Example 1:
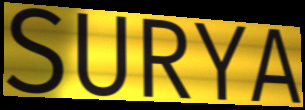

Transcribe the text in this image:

SURYA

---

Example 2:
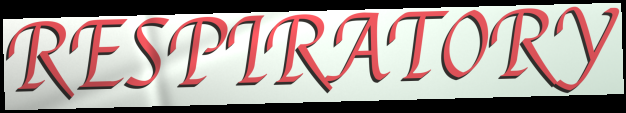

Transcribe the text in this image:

RESPIRATORY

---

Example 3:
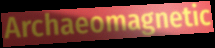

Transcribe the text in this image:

Archaeomagnetic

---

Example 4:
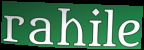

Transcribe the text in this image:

rahile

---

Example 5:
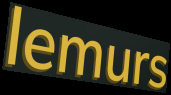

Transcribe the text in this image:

lemurs